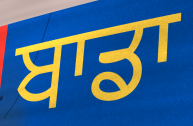
ਬਾਡਾ